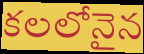
కలలోనైన